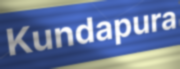
Kundapura